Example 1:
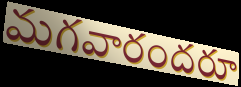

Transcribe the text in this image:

మగవారందరూ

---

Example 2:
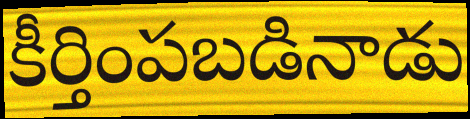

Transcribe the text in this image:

కీర్తింపబడినాడు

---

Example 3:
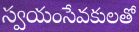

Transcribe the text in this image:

స్వయంసేవకులతో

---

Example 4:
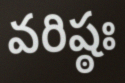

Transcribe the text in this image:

వరిష్ఠః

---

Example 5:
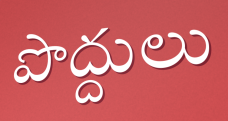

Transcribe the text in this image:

పొద్దులు